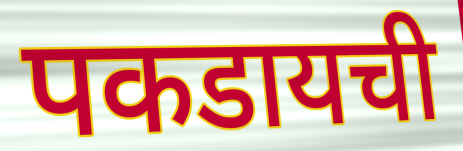
पकडायची